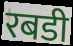
रबडी